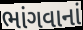
ભાંગવાનાં